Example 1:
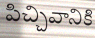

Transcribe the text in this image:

పిచ్చివానికి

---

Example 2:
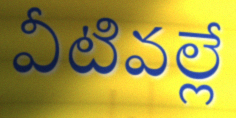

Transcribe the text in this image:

వీటివల్లే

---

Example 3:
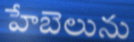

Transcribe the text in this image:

హేబెలును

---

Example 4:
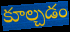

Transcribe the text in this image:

కూల్చడం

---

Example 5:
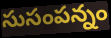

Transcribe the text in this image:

సుసంపన్నం